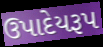
ઉપાદેયરૂપ